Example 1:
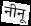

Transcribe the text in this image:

नीनू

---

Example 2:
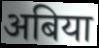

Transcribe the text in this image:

अबिया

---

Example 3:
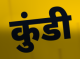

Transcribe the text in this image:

कुंडी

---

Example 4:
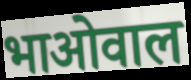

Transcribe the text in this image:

भाओवाल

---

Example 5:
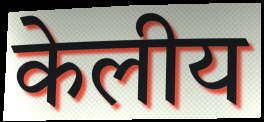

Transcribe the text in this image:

केलीय